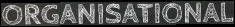
ORGANISATIONAL